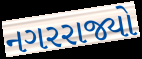
નગરરાજ્યો